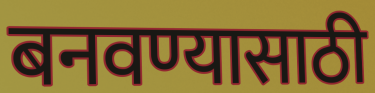
बनवण्‍यासाठी